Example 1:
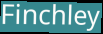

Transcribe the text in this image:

Finchley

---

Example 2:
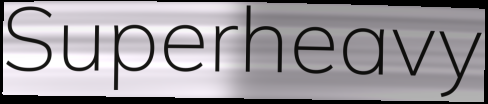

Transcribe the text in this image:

Superheavy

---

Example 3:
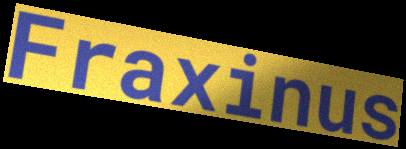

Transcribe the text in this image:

Fraxinus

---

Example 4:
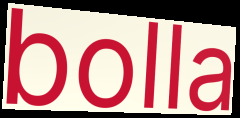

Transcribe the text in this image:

bolla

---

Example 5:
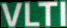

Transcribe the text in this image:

VLTI